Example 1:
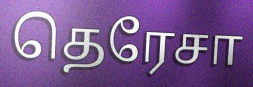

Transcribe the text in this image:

தெரேசா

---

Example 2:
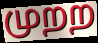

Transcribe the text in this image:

முறற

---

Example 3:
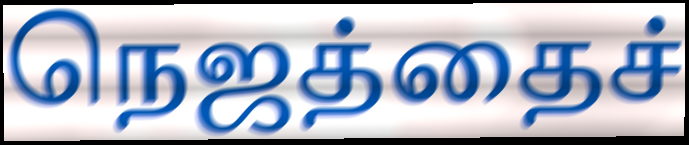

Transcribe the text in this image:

நெஜத்தைச்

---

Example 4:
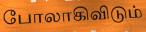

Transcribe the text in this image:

போலாகிவிடும்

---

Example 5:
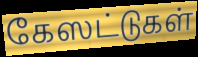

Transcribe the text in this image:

கேஸட்டுகள்